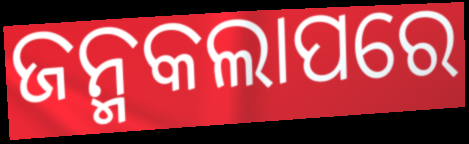
ଜନ୍ମକଲାପରେ